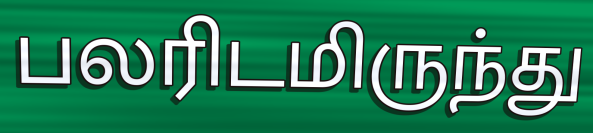
பலரிடமிருந்து